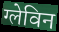
ग्लेविन